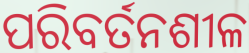
ପରିବର୍ତନଶୀଳ